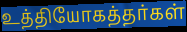
உத்தியோகத்தர்கள்